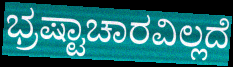
ಭ್ರಷ್ಟಾಚಾರವಿಲ್ಲದೆ